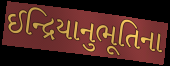
ઈન્દ્રિયાનુભૂતિના